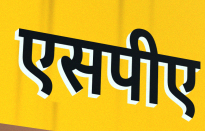
एसपीए